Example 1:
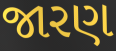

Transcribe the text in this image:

જારણ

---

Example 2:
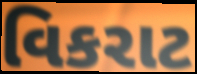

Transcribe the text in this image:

વિકરાટ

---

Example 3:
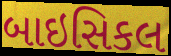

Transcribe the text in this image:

બાઇસિકલ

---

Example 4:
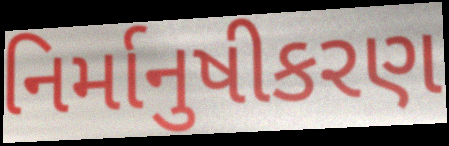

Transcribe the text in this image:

નિર્માનુષીકરણ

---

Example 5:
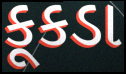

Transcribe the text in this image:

કૂકડા